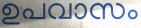
ഉപവാസം